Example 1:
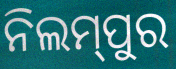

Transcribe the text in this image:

ନିଲମ୍‍ପୁର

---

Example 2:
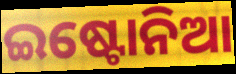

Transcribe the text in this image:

ଇଷ୍ଟୋନିଆ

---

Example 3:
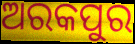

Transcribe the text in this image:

ଅରକପୁର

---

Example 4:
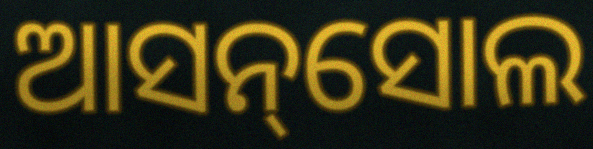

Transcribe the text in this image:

ଆସନ୍‌ସୋଲ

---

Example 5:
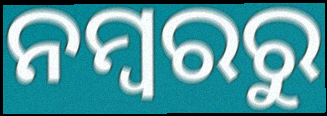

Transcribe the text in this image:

ନମ୍ୱରରୁ